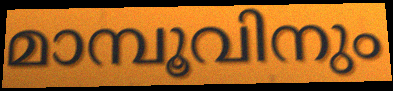
മാമ്പൂവിനും